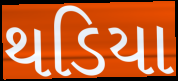
થડિયા